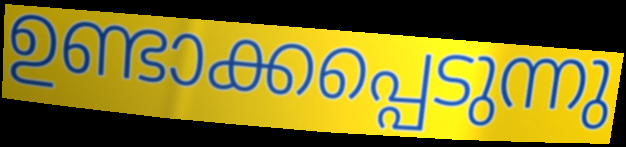
ഉണ്ടാക്കപ്പെടുന്നു